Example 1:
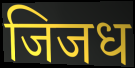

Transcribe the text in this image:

जिजध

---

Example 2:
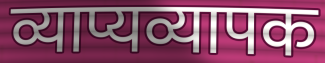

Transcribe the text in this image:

व्याप्यव्यापक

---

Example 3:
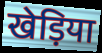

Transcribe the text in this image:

खेड़िया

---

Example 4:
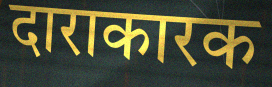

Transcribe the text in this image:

दाराकारक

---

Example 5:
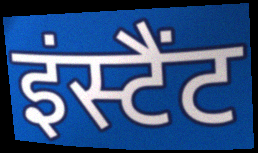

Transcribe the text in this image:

इंस्टैंट